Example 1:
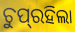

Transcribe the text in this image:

ଚୁପ୍‌ରହିଲା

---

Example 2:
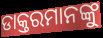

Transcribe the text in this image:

ଡାକ୍ତରମାନଙ୍କୁ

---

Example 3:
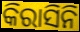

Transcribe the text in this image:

କିରାସିନି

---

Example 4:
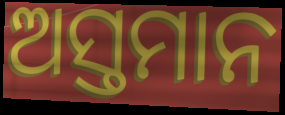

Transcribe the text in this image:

ଅସ୍ତମାନ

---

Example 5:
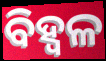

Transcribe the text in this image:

ବିହ୍ଵଳ